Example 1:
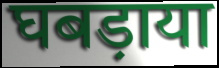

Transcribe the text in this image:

घबड़ाया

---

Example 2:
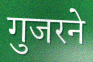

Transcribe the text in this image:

गुजरने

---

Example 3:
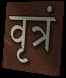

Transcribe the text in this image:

वृत्रं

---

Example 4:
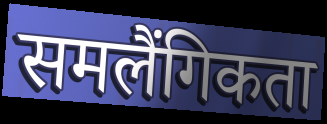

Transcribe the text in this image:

समलैंगिकता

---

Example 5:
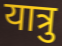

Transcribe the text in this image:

यात्रु